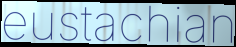
eustachian